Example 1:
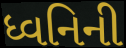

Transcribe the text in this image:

ધ્વનિની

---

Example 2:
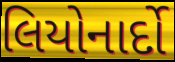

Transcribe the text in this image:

લિયોનાર્દો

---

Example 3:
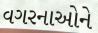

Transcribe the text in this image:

વગરનાઓને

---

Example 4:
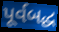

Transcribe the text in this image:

પૂર્વબદ્ધ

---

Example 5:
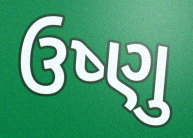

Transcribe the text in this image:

ઉષ્ણુ